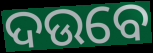
ଦଉବେ